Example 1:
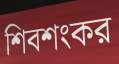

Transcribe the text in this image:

শিবশংকর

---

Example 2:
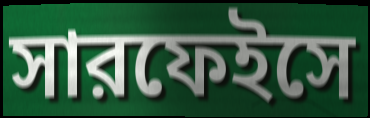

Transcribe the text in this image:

সারফেইসে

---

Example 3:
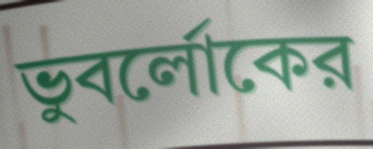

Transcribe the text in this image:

ভুবর্লোকের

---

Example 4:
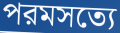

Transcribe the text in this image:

পরমসত্যে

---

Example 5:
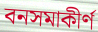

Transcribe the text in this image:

বনসমাকীর্ণ